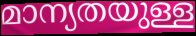
മാന്യതയുള്ള